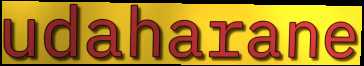
udaharane